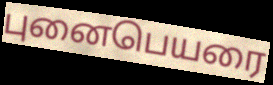
புனைபெயரை